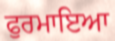
ਫੁਰਮਾਇਆ